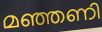
മഞ്ഞണി